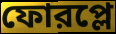
ফোরপ্লে